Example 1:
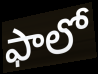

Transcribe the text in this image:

ఫాలో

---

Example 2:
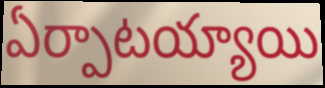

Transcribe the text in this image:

ఏర్పాటయ్యాయి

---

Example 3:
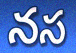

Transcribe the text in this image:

నస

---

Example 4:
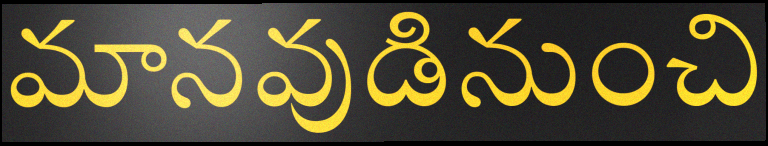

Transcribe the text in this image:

మానవుడినుంచి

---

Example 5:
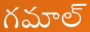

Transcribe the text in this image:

గమాల్